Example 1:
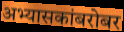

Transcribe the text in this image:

अभ्यासकांबरोबर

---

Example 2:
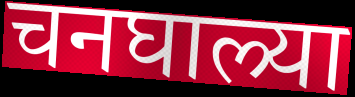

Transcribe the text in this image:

चनघाल्या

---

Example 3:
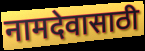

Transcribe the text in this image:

नामदेवासाठी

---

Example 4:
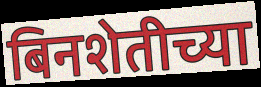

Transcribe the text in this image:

बिनशेतीच्या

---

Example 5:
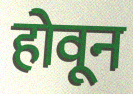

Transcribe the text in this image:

होवून